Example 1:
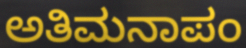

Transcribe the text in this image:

ಅತಿಮನಾಪಂ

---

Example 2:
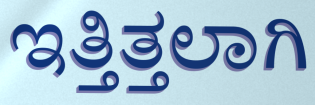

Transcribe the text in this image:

ಇತ್ತಿತ್ತಲಾಗಿ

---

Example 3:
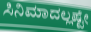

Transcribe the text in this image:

ಸಿನಿಮಾದಲ್ಲಷ್ಟೇ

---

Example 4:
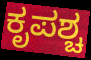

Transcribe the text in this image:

ಕೃಪಶ್ಚ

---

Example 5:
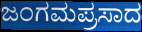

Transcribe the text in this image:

ಜಂಗಮಪ್ರಸಾದ